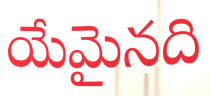
యేమైనది